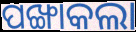
ପଙ୍ଖାକଲା